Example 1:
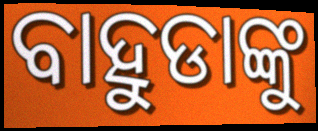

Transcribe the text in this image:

ବାହୁଡାଙ୍କୁ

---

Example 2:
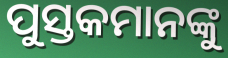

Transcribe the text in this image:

ପୁସ୍ତକମାନଙ୍କୁ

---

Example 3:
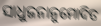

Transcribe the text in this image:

ସାଧୁଜନାନୁମୋଦିତ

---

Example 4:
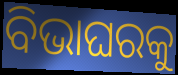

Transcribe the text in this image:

ବିଭାଘରକୁ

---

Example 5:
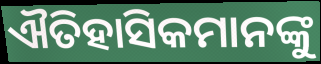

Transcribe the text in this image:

ଐତିହାସିକମାନଙ୍କୁ